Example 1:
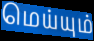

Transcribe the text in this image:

மெய்யும்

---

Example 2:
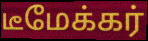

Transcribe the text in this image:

டீமேக்கர்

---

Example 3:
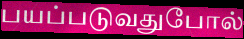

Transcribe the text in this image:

பயப்படுவதுபோல்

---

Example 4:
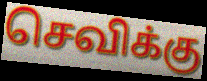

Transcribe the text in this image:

செவிக்கு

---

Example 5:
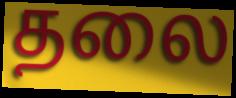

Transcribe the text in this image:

தலை